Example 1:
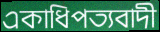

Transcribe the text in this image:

একাধিপত্যবাদী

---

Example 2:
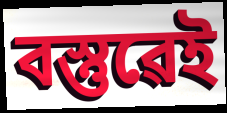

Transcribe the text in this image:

বস্তুৱেই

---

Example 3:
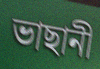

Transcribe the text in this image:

ভাছানী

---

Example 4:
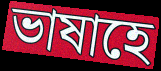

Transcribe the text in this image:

ভাষাহে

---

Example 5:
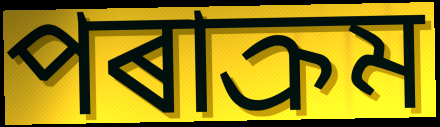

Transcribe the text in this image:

পৰাক্ৰম